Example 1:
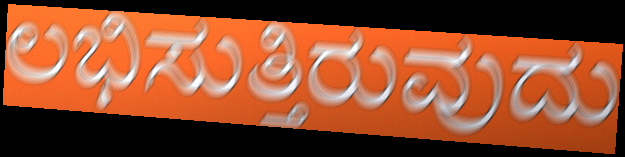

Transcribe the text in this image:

ಲಭಿಸುತ್ತಿರುವುದು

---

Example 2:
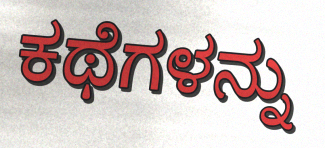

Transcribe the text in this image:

ಕಥೆಗಳನ್ನು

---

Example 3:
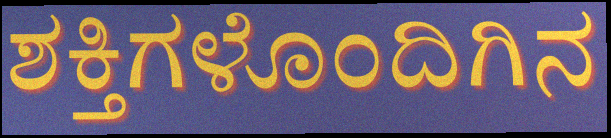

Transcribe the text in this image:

ಶಕ್ತಿಗಳೊಂದಿಗಿನ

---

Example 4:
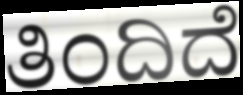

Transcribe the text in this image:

ತಿಂದಿದೆ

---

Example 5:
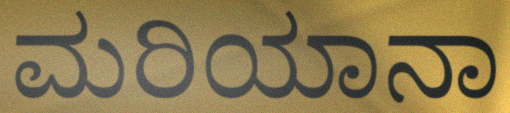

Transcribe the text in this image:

ಮರಿಯಾನಾ